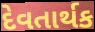
દેવતાર્થક